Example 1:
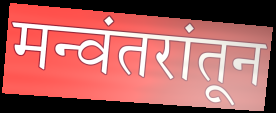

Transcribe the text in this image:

मन्वंतरांतून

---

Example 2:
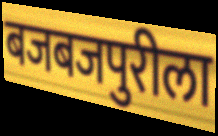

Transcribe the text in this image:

बजबजपुरीला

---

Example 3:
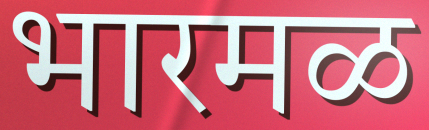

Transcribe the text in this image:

भारमळ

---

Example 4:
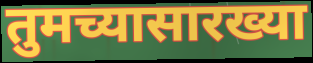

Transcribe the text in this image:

तुमच्यासारख्या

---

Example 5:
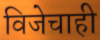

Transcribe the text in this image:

विजेचाही